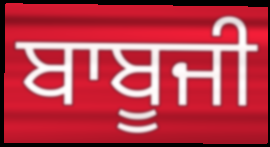
ਬਾਬੂਜੀ